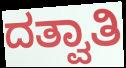
ದತ್ವಾತಿ